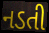
નડતી